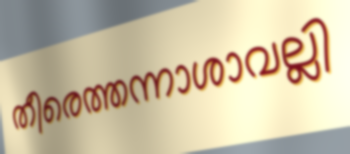
തീരെത്തന്നാശാവല്ലി